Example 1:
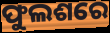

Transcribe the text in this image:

ଫୁଲଶରେ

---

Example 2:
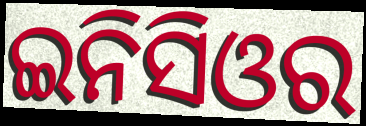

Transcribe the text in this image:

ଇନିସିଓର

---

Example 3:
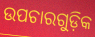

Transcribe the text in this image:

ଉପଚାରଗୁଡ଼ିକ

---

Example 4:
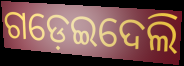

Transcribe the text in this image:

ଗଡ଼େଇଦେଲି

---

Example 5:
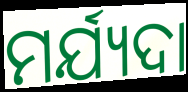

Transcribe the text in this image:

ମର୍ଯ୍ୟଦା